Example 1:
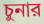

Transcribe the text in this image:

চুনার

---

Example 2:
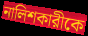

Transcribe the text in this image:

নালিশকারীকে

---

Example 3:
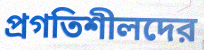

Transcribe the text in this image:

প্রগতিশীলদের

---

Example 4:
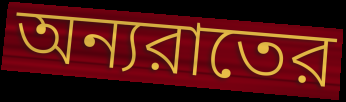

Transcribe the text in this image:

অন্যরাতের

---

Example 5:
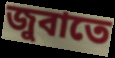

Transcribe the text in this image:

জুবাতে